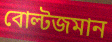
বোল্টজমান